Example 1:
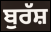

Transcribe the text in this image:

ਬੁਰੱਸ਼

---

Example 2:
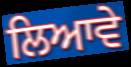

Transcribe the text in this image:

ਲਿਆਵੇ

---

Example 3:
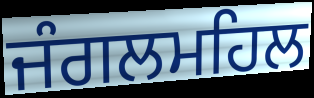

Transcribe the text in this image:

ਜੰਗਲਮਹਿਲ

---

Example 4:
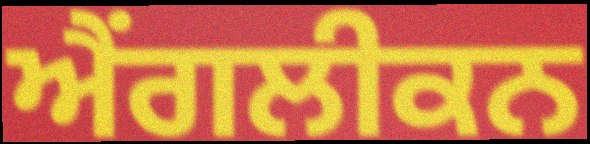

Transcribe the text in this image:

ਐਂਗਲੀਕਨ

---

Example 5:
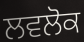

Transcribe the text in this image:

ਲਵਲੋਕ